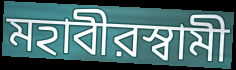
মহাবীরস্বামী